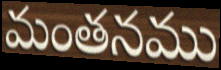
మంతనము